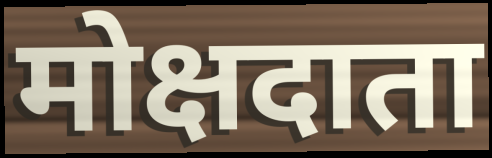
मोक्षदाता